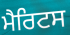
ਮੈਰਿਟਸ